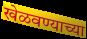
खेळवण्याच्या